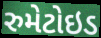
રુમેટોઇડ